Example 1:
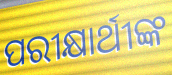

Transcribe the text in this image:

ପରୀକ୍ଷାର୍ଥୀଙ୍କ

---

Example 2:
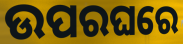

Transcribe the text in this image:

ଉପରଘରେ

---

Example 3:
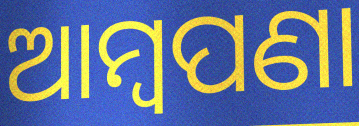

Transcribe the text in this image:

ଆମ୍ବପଣା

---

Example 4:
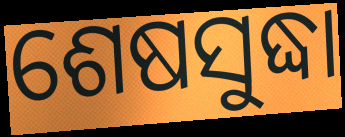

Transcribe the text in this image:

ଶେଷସୁଦ୍ଧା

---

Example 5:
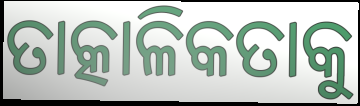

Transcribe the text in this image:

ତାତ୍କାଳିକତାକୁ